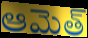
ఆమెత్